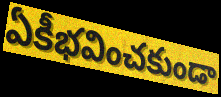
ఏకీభవించకుండా